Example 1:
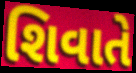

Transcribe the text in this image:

શિવાતે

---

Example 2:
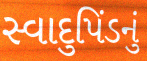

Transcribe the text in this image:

સ્વાદુપિંડનું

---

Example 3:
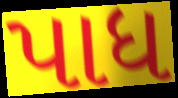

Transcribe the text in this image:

પાધ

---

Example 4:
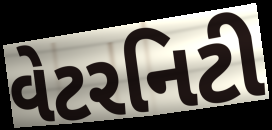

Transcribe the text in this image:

વેટરનિટી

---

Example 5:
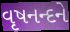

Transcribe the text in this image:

વૃષનન્દને